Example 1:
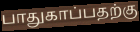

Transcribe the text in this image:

பாதுகாப்பதற்கு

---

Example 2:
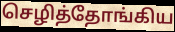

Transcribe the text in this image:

செழித்தோங்கிய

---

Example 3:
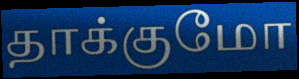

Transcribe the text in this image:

தாக்குமோ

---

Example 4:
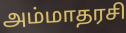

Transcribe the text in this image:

அம்மாதரசி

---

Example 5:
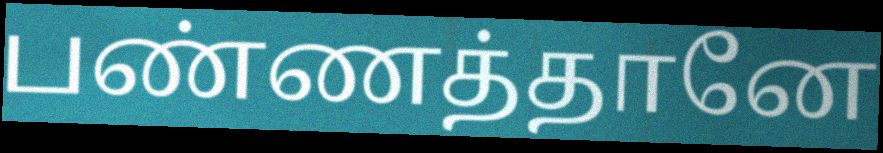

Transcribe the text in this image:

பண்ணத்தானே